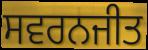
ਸਵਰਨਜੀਤ